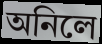
অনিলে